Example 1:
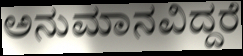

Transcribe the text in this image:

ಅನುಮಾನವಿದ್ದರೆ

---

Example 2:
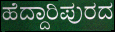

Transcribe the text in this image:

ಹೆದ್ದಾರಿಪುರದ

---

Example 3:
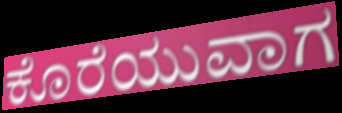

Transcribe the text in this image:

ಕೊರೆಯುವಾಗ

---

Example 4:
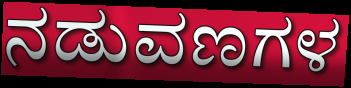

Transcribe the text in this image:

ನಡುವಣಗಳ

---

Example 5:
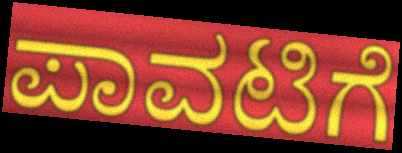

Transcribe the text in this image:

ಪಾವಟಿಗೆ